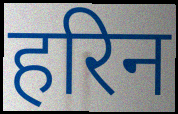
हरिन